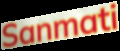
Sanmati